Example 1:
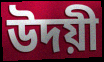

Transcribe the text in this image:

উদয়ী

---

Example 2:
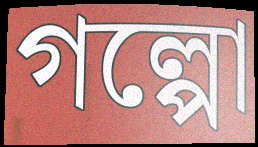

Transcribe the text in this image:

গল্পো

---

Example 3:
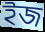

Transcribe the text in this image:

ইজ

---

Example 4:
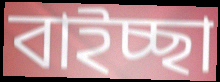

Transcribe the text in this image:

বাইচ্ছা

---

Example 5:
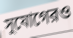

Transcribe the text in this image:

সুযোগেরও